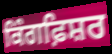
ਕਿੰਗਫ਼ਿਸ਼ਰ